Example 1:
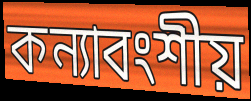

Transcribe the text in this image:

কন্যাবংশীয়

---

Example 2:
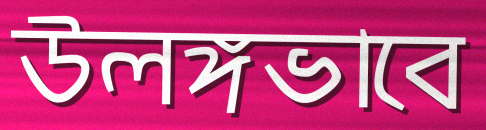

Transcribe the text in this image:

উলঙ্গভাবে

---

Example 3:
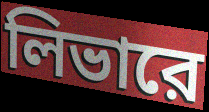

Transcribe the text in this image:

লিভারে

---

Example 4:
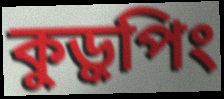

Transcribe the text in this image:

কুড়ুপিং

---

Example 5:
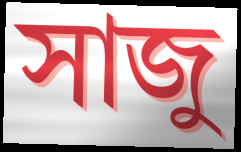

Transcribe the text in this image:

সাজু